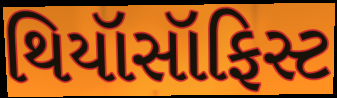
થિયૉસૉફિસ્ટ